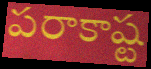
పరాకాష్ట